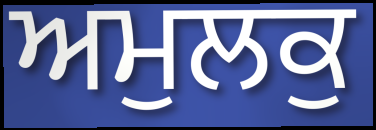
ਅਮੁਲਕੁ